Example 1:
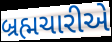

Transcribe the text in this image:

બ્રહ્મચારીએ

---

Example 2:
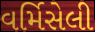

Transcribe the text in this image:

વર્મિસેલી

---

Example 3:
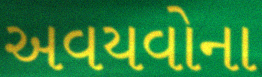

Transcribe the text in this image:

અવયવોના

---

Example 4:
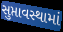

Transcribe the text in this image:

સુપ્તાવસ્થામાં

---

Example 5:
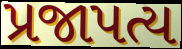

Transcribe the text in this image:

પ્રજાપત્ય